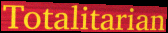
Totalitarian